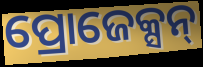
ପ୍ରୋଜେକ୍ସନ୍